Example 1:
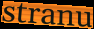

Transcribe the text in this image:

stranu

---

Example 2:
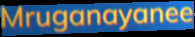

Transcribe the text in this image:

Mruganayanee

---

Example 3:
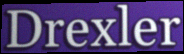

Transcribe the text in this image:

Drexler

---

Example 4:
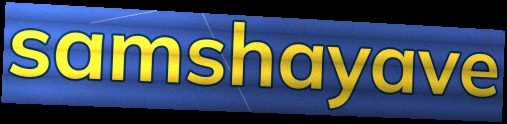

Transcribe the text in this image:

samshayave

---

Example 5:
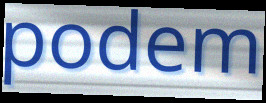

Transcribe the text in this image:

podem